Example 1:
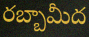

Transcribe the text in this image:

రబ్బామీద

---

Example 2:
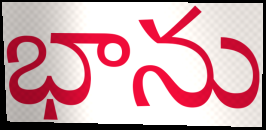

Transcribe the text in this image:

భాను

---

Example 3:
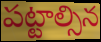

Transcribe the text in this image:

పట్టాల్సిన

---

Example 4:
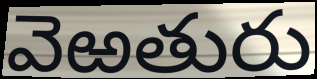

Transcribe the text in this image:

వెఱతురు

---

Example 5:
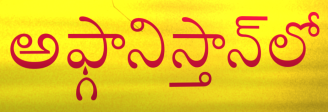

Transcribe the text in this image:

అఫ్గానిస్తాన్‌లో